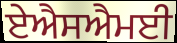
ਏਐਸਐਮਈ